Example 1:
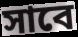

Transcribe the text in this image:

সাবে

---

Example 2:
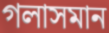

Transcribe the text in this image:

গলাসমান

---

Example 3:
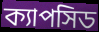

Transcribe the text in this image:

ক্যাপসিড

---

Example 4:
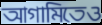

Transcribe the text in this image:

আগামিতেও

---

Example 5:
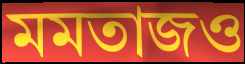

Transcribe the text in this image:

মমতাজও